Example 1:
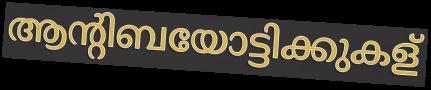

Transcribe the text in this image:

ആന്റിബയോട്ടിക്കുകള്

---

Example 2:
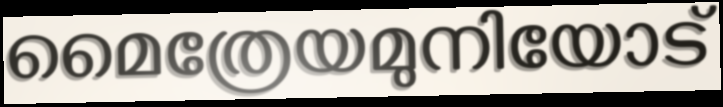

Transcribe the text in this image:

മൈത്രേയമുനിയോട്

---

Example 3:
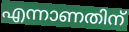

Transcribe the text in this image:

എന്നാണതിന്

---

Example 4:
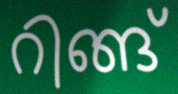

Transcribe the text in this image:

റിങ്ങ്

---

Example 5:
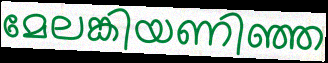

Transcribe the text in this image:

മേലങ്കിയണിഞ്ഞ